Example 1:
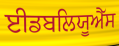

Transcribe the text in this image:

ਈਡਬਲਿਯੂਐੱਸ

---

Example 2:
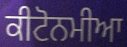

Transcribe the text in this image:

ਕੀਟੋਨਮੀਆ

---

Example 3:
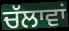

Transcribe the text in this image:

ਚੱਲਾਵਾਂ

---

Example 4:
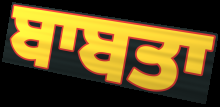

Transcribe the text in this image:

ਬਾਬਤਾ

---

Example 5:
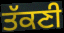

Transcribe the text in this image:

ਤੱਕਣੀ